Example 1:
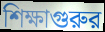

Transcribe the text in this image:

শিক্ষাগুরুর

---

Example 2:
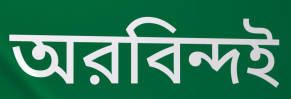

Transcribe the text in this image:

অরবিন্দই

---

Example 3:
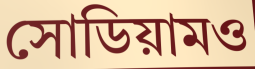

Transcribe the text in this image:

সোডিয়ামও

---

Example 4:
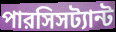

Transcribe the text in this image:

পারসিসট্যান্ট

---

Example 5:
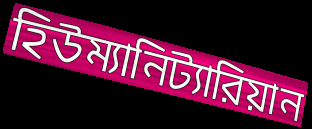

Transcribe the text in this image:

হিউম্যানিট্যারিয়ান